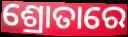
ଶ୍ରୋତାରେ